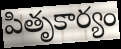
పితృకార్యం